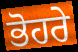
ਭੋਹਰੇ